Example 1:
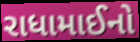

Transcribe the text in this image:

રાધામાઈનો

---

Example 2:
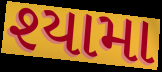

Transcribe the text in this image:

શ્યામા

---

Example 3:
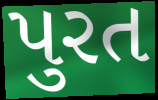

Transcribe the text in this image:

પુરત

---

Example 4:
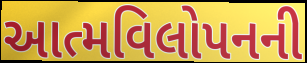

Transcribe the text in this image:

આત્મવિલોપનની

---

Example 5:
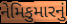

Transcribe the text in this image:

નેમિકુમારનું